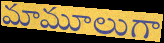
మామూలుగా